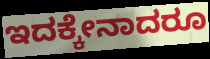
ಇದಕ್ಕೇನಾದರೂ